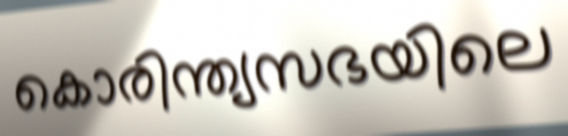
കൊരിന്ത്യസഭയിലെ